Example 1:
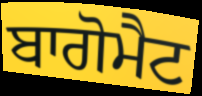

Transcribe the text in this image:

ਬਾਗੋਮੈਟ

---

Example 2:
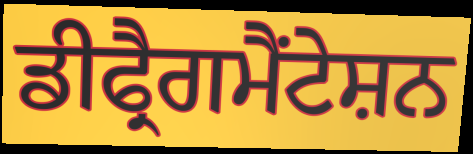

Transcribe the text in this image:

ਡੀਫ੍ਰੈਗਮੈਂਟੇਸ਼ਨ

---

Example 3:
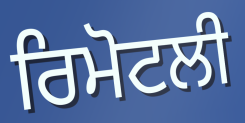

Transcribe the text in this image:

ਰਿਮੋਟਲੀ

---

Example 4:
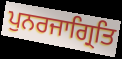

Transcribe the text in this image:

ਪੁਨਰਜਾਗ੍ਰਿਤਿ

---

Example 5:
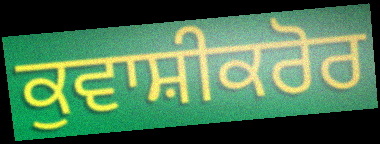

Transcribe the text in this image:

ਕੁਵਾਸ਼ੀਕਰੋਰ